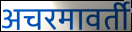
अचरमावर्ती